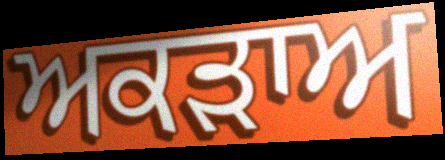
ਅਕੜਾਅ